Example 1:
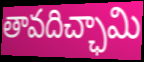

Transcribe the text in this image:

తావదిచ్ఛామి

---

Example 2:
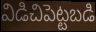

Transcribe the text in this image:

విడిచిపెట్టబడి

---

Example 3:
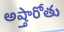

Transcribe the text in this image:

అష్తారోతు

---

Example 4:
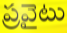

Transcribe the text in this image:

ప్రవైటు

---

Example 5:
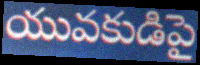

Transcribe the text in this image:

యువకుడిపై